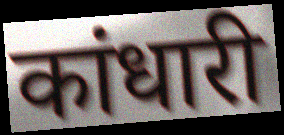
कांधारी